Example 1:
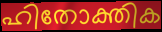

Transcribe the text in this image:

ഹിതോക്തിക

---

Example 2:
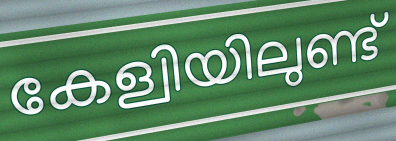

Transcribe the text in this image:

കേള്വിയിലുണ്ട്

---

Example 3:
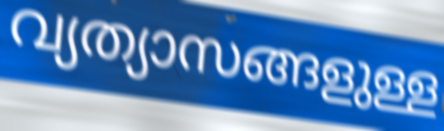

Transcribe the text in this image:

വ്യത്യാസങ്ങളുള്ള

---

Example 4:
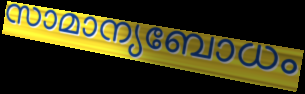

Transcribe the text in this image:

സാമാന്യബോധം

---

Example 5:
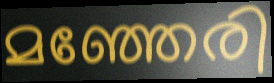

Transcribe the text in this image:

മഞ്ഞേരി